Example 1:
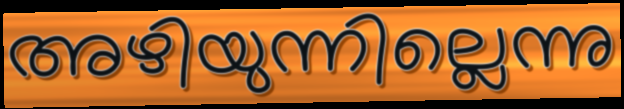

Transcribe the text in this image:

അഴിയുന്നില്ലെന്നു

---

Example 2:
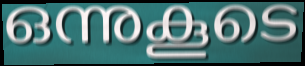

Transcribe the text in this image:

ഒന്നുകൂടെ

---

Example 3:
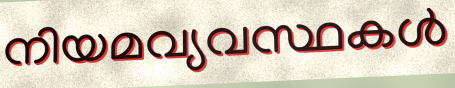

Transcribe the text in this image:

നിയമവ്യവസ്ഥകൾ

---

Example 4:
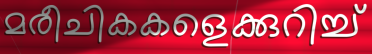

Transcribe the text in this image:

മരീചികകളെക്കുറിച്ച്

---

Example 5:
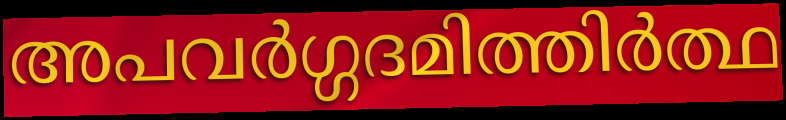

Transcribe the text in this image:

അപവർഗ്ഗദമിത്തിർത്ഥ